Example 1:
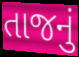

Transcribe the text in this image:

તાજનું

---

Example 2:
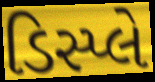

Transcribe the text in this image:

ડિસ્પ્લે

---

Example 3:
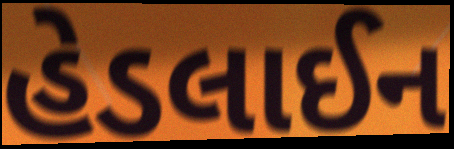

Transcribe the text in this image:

હેડલાઈન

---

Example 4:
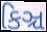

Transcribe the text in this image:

કિઞ્ચ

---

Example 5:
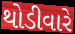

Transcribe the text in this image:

થોડીવારે